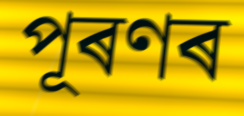
পূৰণৰ